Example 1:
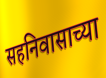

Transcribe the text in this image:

सहनिवासाच्या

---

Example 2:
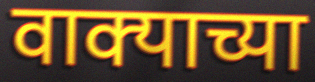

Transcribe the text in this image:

वाक्याच्या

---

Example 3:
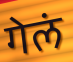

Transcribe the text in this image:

गेलं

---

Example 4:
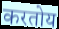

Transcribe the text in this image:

करतोय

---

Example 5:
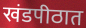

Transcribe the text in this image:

खंडपीठात